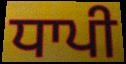
ਧਾਪੀ